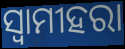
ସ୍ଵାମୀହରା